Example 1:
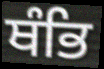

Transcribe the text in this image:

ਥੰਭਿ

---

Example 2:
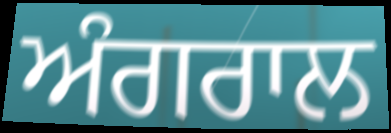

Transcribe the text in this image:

ਅੰਗਰਾਲ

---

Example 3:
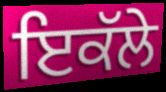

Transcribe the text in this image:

ਇਕੱਲੇ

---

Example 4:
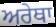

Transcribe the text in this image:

ਅਰੇਥਾ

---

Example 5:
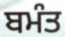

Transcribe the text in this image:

ਬਮੰਤ